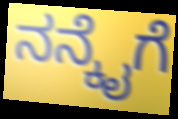
ನನ್ಕೈಗೆ